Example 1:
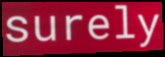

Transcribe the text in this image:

surely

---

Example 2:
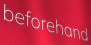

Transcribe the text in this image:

beforehand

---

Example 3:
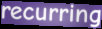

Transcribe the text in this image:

recurring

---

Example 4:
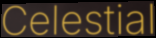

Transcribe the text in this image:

Celestial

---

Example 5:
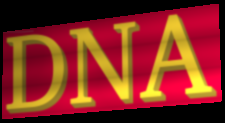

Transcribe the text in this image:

DNA